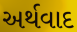
અર્થવાદ